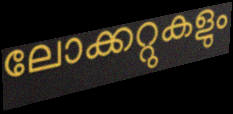
ലോക്കറ്റുകളും